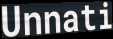
Unnati